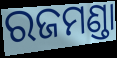
ରଜମଣ୍ଡା